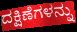
ದಕ್ಷಿಣೆಗಳನ್ನು